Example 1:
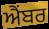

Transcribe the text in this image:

ਐਂਬਰ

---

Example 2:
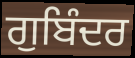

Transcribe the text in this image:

ਗੁਬਿੰਦਰ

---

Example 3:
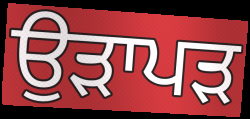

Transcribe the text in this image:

ਉੜਾਪੜ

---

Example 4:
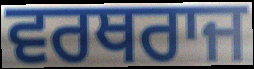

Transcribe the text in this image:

ਵਰਥਰਾਜ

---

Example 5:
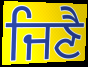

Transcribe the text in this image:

ਜਿਣੈ